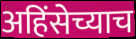
अहिंसेच्याच